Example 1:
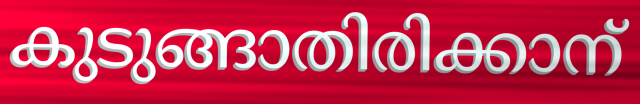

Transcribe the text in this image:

കുടുങ്ങാതിരിക്കാന്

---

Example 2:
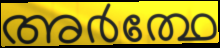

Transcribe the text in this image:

അർത്ഥേ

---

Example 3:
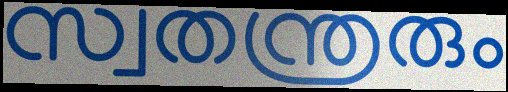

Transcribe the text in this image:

സ്വതന്ത്രരും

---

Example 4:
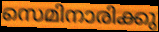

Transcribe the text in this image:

സെമിനാരിക്കു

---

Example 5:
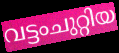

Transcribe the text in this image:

വട്ടംചുറ്റിയ